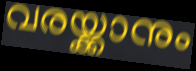
വരയ്ക്കാനും